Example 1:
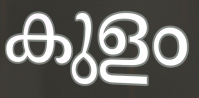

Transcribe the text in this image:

കുളം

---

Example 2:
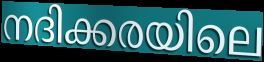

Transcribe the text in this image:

നദിക്കരയിലെ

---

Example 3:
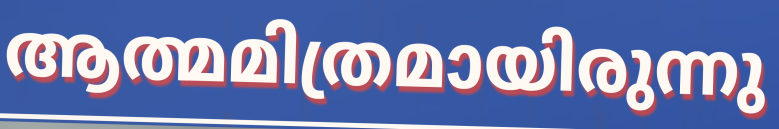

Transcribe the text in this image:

ആത്മമിത്രമായിരുന്നു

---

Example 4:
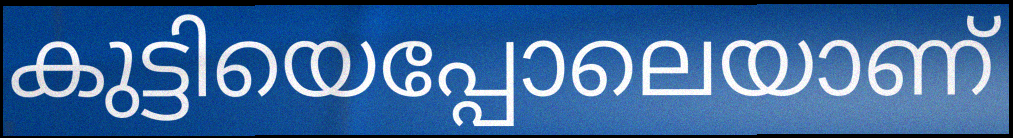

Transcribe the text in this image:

കുട്ടിയെപ്പോലെയാണ്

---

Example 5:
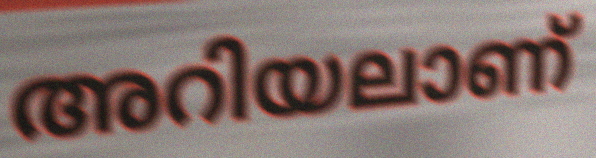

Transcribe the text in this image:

അറിയലാണ്